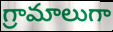
గ్రామాలుగా